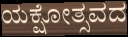
ಯಕ್ಷೋತ್ಸವದ